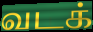
வடக்